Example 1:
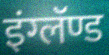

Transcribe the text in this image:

इंग्लॅण्ड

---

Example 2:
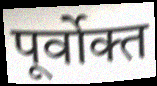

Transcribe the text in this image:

पूर्वोक्त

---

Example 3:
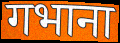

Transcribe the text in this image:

गभाना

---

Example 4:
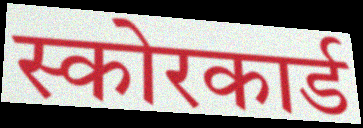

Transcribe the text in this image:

स्कोरकार्ड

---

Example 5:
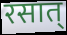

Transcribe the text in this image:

रसात्